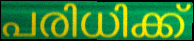
പരിധിക്ക്